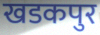
खडकपुर